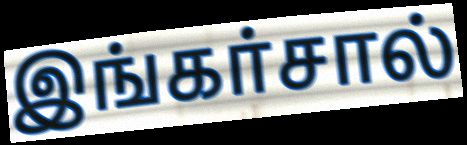
இங்கர்சால்